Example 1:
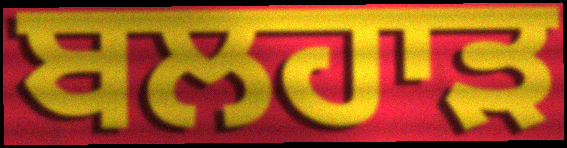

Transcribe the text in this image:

ਬਲਹਾੜ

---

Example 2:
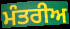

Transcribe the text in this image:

ਮੰਤਰੀਅ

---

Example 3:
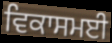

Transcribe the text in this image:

ਵਿਕਾਸਮਈ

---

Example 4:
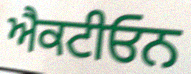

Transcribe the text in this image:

ਐਕਟੀਓਨ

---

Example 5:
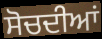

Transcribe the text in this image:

ਸੋਚਦੀਆਂ